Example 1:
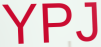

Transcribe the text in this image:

YPJ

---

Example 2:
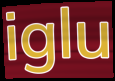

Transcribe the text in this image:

iglu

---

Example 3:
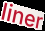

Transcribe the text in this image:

liner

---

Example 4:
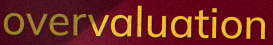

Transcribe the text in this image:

overvaluation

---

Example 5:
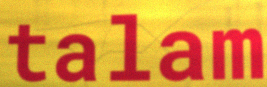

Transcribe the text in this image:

talam